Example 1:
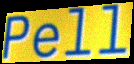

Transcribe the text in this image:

Pell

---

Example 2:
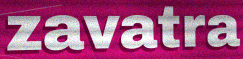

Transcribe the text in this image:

zavatra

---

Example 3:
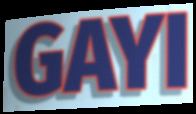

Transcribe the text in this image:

GAYI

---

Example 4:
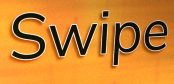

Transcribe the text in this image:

Swipe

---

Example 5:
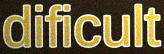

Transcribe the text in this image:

dificult